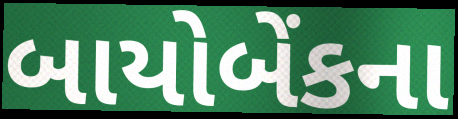
બાયોબેંકના